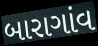
બારાગાંવ